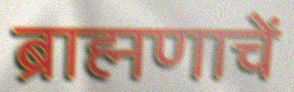
ब्राह्मणाचें